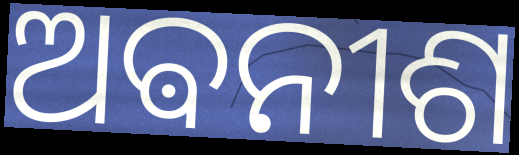
ଅଵନୀଶ